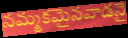
నమ్మకమైనవాడనై